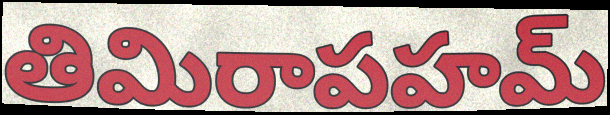
తిమిరాపహమ్